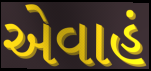
એવાહં